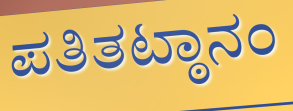
ಪತಿತಟ್ಠಾನಂ